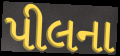
પીલના